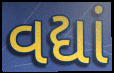
વદ્યાં